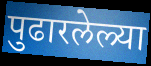
पुढारलेल्या